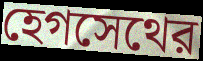
হেগসেথের